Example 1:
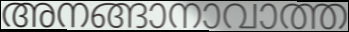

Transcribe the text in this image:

അനങ്ങാനാവാത്ത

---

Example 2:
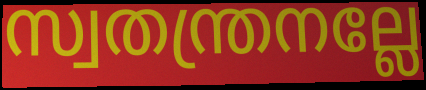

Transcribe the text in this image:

സ്വതന്ത്രനല്ലേ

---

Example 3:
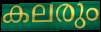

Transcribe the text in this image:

കലരും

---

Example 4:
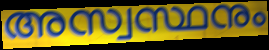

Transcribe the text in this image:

അസ്വസ്ഥനും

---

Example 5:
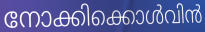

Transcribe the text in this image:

നോക്കിക്കൊൾവിൻ